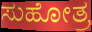
ಸುಹೋತ್ರ